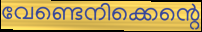
വേണ്ടെനിക്കെന്റെ